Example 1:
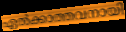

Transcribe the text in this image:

ഏൽക്കാത്തവനായി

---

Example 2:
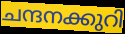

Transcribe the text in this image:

ചന്ദനക്കുറി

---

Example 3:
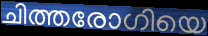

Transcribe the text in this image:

ചിത്തരോഗിയെ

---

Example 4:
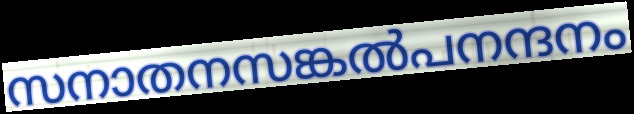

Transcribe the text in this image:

സനാതനസങ്കൽപനന്ദനം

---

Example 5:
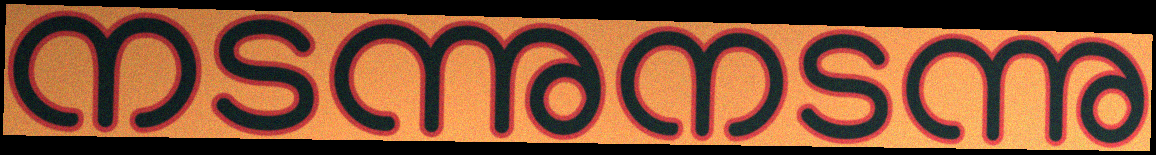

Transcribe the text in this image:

നടന്നുനടന്നു